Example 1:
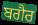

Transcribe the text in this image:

ਬਗੈਰ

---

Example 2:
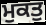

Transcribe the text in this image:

ਮੁਕਤੁ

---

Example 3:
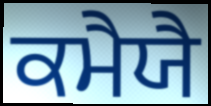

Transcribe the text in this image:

ਕਮੈਯੈ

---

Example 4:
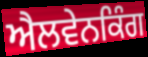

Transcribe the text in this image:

ਐਲਵੇਨਕਿੰਗ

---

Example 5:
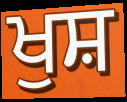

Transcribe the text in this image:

ਖੁਸ਼